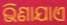
ଭିଣାଯାଏ